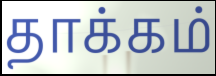
தாக்கம்